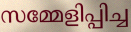
സമ്മേളിപ്പിച്ച